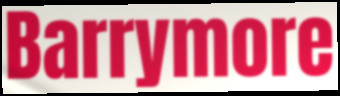
Barrymore